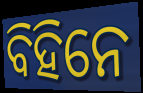
ବିହିନେ